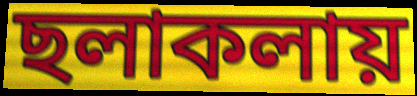
ছলাকলায়